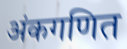
अंकगणित